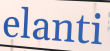
elanti